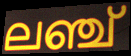
ലഞ്ച്